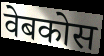
वेबकोस